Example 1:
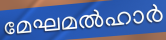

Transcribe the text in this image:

മേഘമൽഹാർ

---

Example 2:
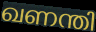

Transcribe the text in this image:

ഖണന്തി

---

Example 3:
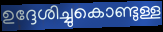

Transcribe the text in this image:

ഉദ്ദേശിച്ചുകൊണ്ടുള്ള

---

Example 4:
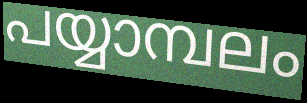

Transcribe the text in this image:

പയ്യാമ്പലം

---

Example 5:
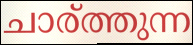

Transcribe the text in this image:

ചാര്ത്തുന്ന